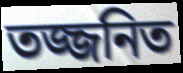
তজ্জনিত